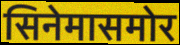
सिनेमासमोर